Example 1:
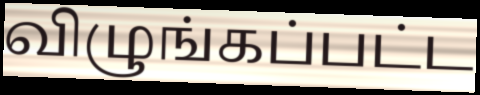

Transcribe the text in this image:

விழுங்கப்பட்ட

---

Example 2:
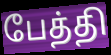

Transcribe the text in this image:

பேத்தி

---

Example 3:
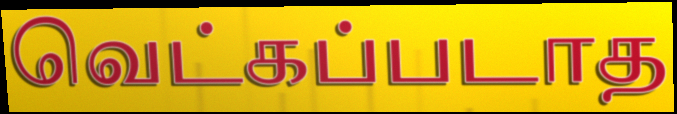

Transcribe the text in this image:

வெட்கப்படாத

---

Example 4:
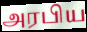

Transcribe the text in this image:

அரபிய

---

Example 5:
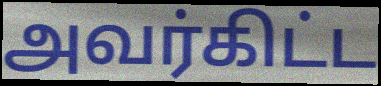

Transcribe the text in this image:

அவர்கிட்ட